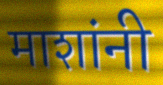
माशांनी